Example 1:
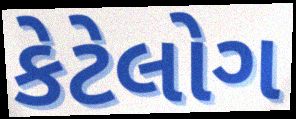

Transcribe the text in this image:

કેટેલોગ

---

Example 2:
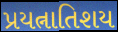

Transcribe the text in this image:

પ્રયત્નાતિશય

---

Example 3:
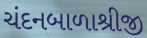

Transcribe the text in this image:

ચંદનબાળાશ્રીજી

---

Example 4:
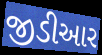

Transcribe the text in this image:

જીડીઆર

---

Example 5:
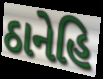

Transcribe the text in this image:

ઠાનેહિ